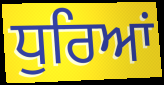
ਧੁਰਿਆਂ